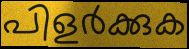
പിളർക്കുക